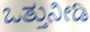
ಒತ್ತುನೀಡಿ